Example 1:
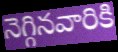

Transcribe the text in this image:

నెగ్గినవారికి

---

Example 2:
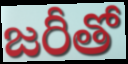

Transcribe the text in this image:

జరీతో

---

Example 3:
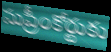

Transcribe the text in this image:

సుప్రీంకోర్టుకు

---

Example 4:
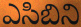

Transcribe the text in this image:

ఎసిబిని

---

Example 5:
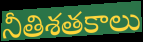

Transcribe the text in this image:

నీతిశతకాలు